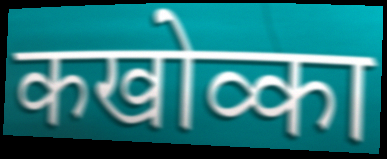
कखोव्का